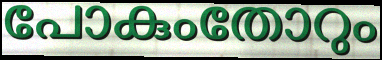
പോകുംതോറും